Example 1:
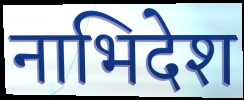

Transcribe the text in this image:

नाभिदेश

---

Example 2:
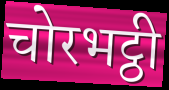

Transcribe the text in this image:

चोरभट्ठी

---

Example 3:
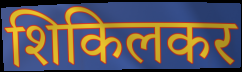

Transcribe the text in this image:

शिकिलकर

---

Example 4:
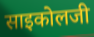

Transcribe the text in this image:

साइकोलजी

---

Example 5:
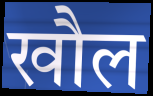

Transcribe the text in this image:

खौल